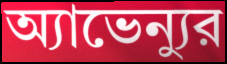
অ্যাভেন্যুর